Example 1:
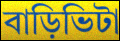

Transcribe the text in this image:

বাড়িভিটা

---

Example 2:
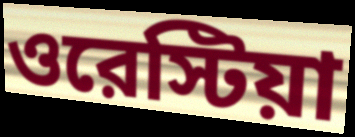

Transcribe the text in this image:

ওরেস্টিয়া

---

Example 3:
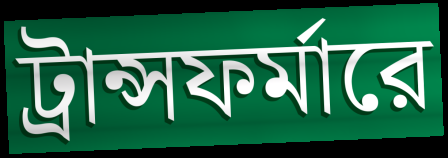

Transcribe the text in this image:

ট্রান্সফর্মারে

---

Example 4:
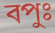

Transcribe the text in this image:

বপুঃ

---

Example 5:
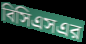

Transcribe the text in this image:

বিসিএসএর